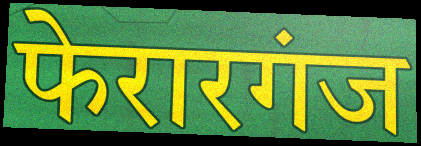
फेरारगंज